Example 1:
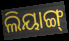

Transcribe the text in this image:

ଲିୟାଙ୍ଗ୍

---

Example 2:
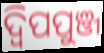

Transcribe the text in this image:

ଦ୍ଵିପପୁଞ୍ଜ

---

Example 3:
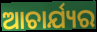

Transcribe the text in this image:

ଆଚାର୍ଯ୍ୟର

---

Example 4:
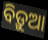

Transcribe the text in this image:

ବିଡ଼ୁଆ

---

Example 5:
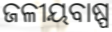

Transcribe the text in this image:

ଜଳୀୟବାଷ୍ପ